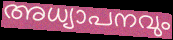
അധ്യാപനവും